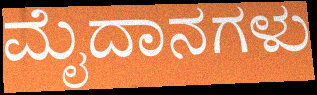
ಮೈದಾನಗಳು